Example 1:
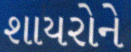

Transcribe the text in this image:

શાયરોને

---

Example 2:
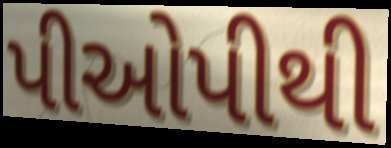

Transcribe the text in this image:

પીઓપીથી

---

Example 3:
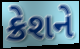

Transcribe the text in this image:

ક્રેશને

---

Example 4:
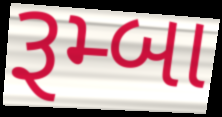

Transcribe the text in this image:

રૂમ્બા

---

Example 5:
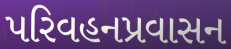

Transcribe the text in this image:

પરિવહનપ્રવાસન